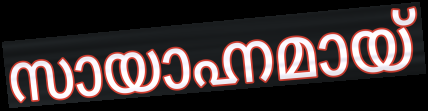
സായാഹ്നമായ്